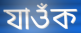
যাওঁক